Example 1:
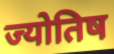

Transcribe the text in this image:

ज्योतिष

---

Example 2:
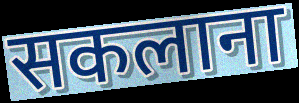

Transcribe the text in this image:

सकलाना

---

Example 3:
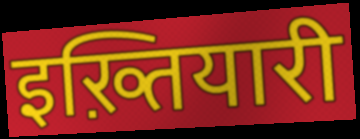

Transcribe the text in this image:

इख़्तियारी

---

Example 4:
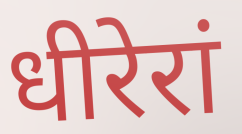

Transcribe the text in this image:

धीरेरां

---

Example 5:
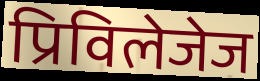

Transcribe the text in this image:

प्रिविलेजेज